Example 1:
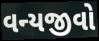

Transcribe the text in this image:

વન્યજીવો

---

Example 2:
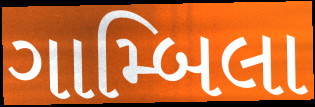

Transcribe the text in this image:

ગામ્બિલા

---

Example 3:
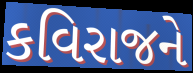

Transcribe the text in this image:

કવિરાજને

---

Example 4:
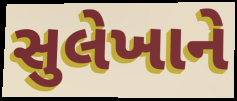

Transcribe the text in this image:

સુલેખાને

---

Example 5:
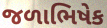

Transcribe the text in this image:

જળાભિષેક